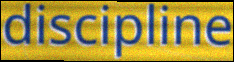
discipline